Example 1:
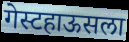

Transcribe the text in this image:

गेस्टहाऊसला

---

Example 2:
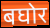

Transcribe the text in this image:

बघोर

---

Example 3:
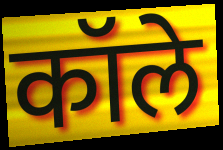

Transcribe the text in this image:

कॉले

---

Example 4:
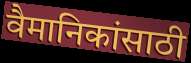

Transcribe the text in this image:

वैमानिकांसाठी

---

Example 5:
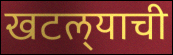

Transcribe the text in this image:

खटल्याची